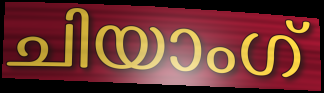
ചിയാംഗ്